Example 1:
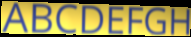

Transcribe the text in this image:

ABCDEFGH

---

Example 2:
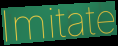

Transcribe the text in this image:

Imitate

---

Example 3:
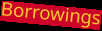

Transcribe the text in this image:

Borrowings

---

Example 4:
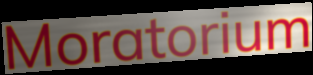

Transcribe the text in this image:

Moratorium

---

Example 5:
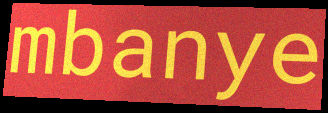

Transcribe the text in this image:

mbanye